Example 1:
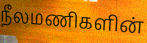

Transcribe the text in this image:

நீலமணிகளின்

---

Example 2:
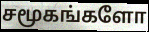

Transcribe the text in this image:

சமூகங்களோ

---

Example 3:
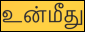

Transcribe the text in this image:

உன்மீது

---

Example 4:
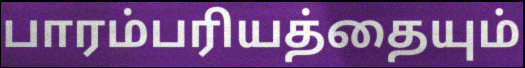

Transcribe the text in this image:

பாரம்பரியத்தையும்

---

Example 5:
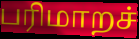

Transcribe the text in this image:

பரிமாறச்